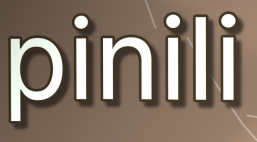
pinili